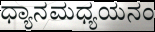
ಧ್ಯಾನಮಧ್ಯಯನಂ